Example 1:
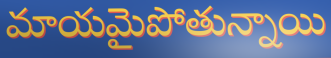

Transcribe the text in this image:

మాయమైపోతున్నాయి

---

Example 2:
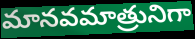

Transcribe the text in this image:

మానవమాత్రునిగా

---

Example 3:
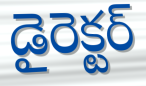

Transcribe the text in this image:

డైరెక్టర్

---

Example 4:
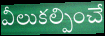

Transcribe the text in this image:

వీలుకల్పించే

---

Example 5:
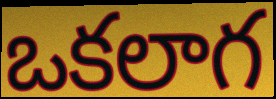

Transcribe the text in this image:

ఒకలాగ